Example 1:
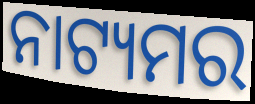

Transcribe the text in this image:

ନାଟ୍ୟମର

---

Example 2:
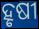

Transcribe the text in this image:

ହୃଷୀ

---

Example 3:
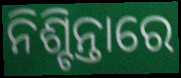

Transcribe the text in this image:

ନିଶ୍ଚିନ୍ତାରେ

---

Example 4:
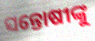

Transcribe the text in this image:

ସନ୍ତୋଷୀଙ୍କୁ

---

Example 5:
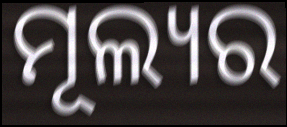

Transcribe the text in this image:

ମୂଲ୍ଯର